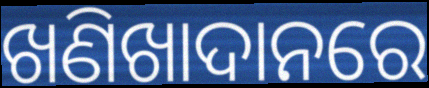
ଖଣିଖାଦାନରେ